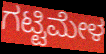
ಗಟ್ಟಿಮೇಳ